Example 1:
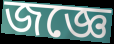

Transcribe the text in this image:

জজ্ঞে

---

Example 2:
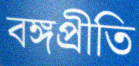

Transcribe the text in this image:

বঙ্গপ্রীতি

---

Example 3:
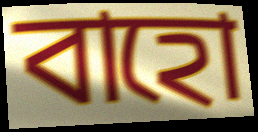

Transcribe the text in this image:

বাহো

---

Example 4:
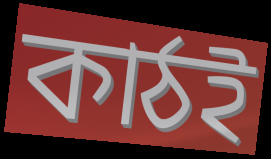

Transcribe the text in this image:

কাঠই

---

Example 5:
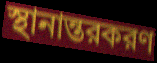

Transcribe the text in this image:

স্থানান্তরকরণ